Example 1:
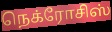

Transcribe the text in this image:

நெக்ரோசிஸ்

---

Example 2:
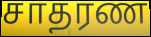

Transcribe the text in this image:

சாதரண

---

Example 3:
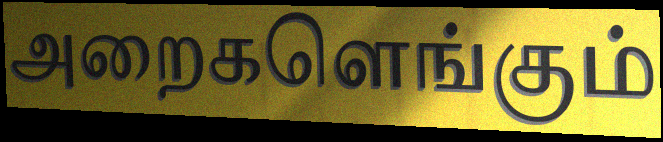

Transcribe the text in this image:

அறைகளெங்கும்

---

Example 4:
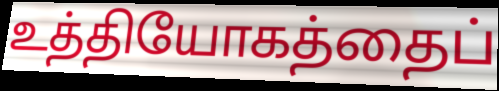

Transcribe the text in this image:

உத்தியோகத்தைப்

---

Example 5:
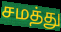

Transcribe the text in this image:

சமத்து